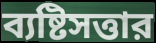
ব্যষ্টিসত্তার